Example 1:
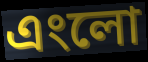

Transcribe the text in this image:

এংলো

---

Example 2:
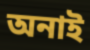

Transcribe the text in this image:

অনাই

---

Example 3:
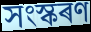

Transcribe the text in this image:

সংস্কৰণ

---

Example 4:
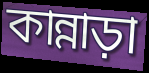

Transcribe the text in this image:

কান্নাড়া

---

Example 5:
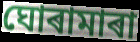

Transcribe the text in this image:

ঘোৰামাৰা